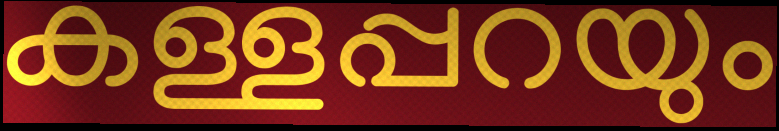
കള്ളപ്പറയും